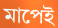
মাপেই